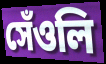
সেঁওলি